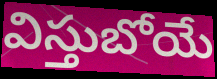
విస్తుబోయే